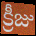
క్రీజు